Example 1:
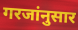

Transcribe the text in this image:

गरजांनुसार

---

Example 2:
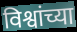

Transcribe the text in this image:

विश्वांच्या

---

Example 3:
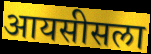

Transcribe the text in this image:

आयसीसला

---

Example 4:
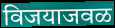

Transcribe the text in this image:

विजयाजवळ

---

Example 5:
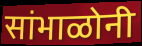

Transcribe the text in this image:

सांभाळोनी